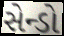
સેન્ડો